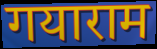
गयाराम